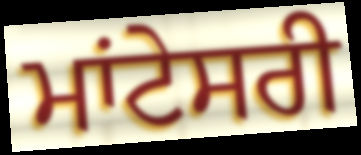
ਮਾਂਟੇਸਰੀ